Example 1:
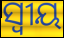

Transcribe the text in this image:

ସ୍ବୀୟ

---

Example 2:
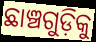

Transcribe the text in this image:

ଛାଞ୍ଚଗୁଡ଼ିକୁ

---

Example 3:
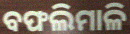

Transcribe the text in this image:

ବଫଲିମାଳି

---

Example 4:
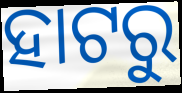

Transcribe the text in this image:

ହାଟରୁ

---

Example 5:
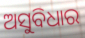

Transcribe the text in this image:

ଅସୁବିଧାର